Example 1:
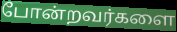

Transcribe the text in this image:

போன்றவர்களை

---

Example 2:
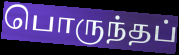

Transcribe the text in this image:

பொருந்தப்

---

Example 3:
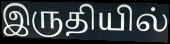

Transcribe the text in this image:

இருதியில்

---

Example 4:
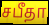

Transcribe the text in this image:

சபீதா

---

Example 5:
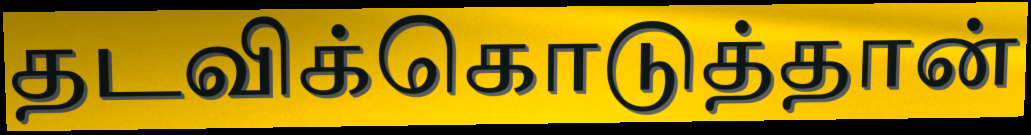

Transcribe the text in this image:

தடவிக்கொடுத்தான்